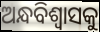
ଅନ୍ଧବିଶ୍ୱାସକୁ